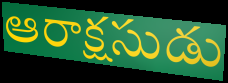
ఆరాక్షసుడు